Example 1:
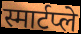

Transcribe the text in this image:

स्मार्टप्ले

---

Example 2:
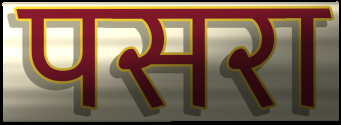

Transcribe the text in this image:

पसरा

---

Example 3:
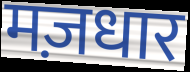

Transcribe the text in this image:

मज़धार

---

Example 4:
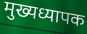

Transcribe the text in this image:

मुख्यध्यापक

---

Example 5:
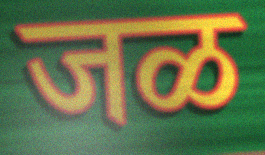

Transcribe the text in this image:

जळ